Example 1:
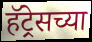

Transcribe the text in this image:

हॅट्रेसच्या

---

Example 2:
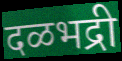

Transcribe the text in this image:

दळभद्री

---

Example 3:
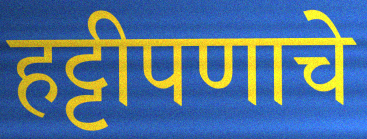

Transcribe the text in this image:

हट्टीपणाचे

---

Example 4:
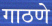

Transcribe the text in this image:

गाठणे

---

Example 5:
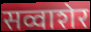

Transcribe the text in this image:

सव्वाशेर